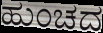
ಹುಂಚದ